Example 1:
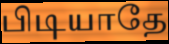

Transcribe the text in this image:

பிடியாதே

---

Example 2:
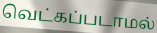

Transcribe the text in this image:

வெட்கப்படாமல்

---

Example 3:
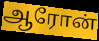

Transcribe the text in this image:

ஆரோன்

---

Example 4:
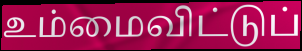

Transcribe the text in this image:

உம்மைவிட்டுப்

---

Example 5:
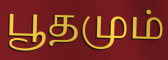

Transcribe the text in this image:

பூதமும்